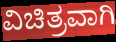
ವಿಚಿತ್ರವಾಗಿ